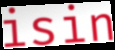
isin